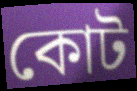
কোট